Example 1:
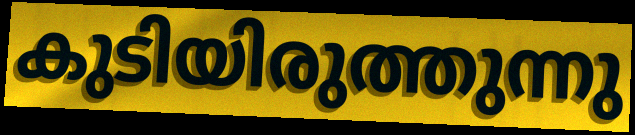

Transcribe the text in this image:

കുടിയിരുത്തുന്നു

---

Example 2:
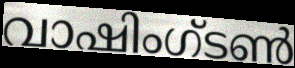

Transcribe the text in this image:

വാഷിംഗ്ടൺ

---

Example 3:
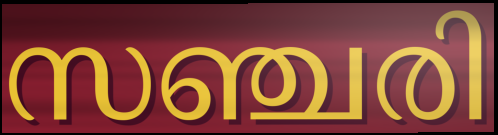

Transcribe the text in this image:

സഞ്ചരി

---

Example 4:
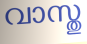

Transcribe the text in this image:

വാസ്തു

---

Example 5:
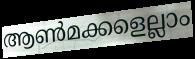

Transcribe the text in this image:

ആൺമക്കളെല്ലാം